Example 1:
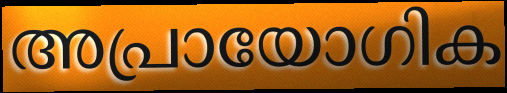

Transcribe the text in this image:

അപ്രായോഗിക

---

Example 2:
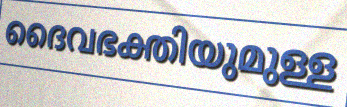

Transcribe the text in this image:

ദൈവഭക്തിയുമുള്ള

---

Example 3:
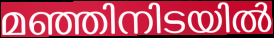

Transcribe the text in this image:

മഞ്ഞിനിടയിൽ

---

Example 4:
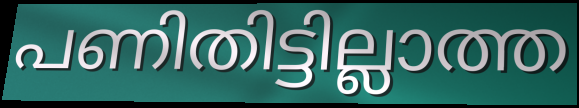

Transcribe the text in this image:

പണിതിട്ടില്ലാത്ത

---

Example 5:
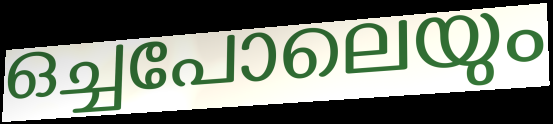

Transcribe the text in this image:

ഒച്ചപോലെയും